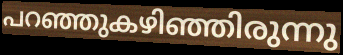
പറഞ്ഞുകഴിഞ്ഞിരുന്നു